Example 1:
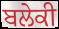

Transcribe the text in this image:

ਬਲੇਕੀ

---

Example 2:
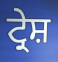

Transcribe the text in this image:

ਟ੍ਰੇਸ਼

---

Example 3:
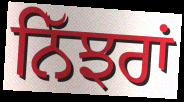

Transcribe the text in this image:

ਨਿੱਝਰਾਂ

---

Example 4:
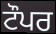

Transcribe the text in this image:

ਟੌਪਰ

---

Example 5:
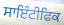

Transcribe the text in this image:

ਸਾਇੰਟੀਫਿਕ